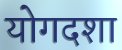
योगदशा